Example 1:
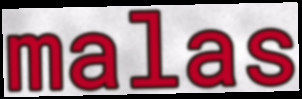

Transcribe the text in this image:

malas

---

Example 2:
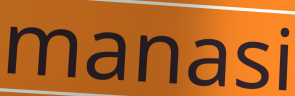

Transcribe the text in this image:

manasi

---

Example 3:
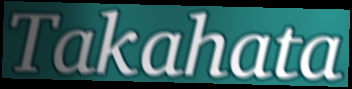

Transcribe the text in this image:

Takahata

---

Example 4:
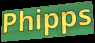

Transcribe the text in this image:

Phipps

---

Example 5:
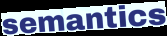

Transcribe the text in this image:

semantics